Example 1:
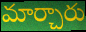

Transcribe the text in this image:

మార్చారు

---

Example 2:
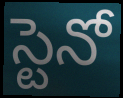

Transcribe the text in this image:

స్టెనో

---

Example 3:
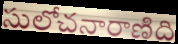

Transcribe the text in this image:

సులోచనారాణిది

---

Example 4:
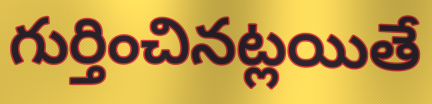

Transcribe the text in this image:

గుర్తించినట్లయితే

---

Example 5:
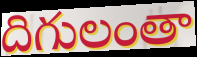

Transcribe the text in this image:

దిగులంతా